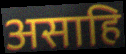
असाहि